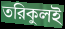
তরিকুলই